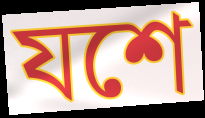
যশে